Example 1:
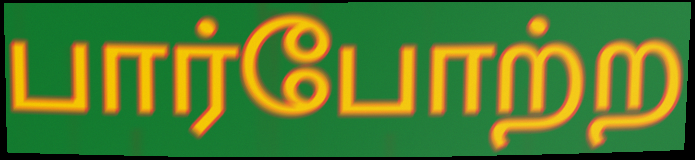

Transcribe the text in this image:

பார்போற்ற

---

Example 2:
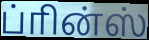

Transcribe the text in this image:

ப்ரின்ஸ்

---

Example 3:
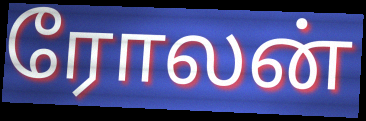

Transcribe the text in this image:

ரோலன்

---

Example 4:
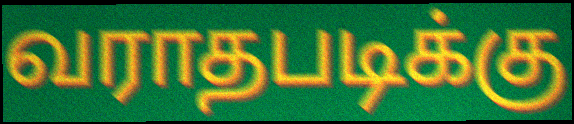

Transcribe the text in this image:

வராதபடிக்கு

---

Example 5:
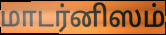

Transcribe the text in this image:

மாடர்னிஸம்